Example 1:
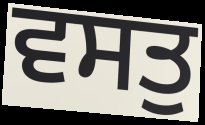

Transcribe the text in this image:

ਵਸਤੁ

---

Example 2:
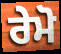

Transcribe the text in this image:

ਰੇਮੋ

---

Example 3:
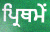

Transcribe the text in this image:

ਪ੍ਰਿਥਮੇਂ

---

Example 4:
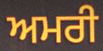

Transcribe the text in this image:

ਅਮਰੀ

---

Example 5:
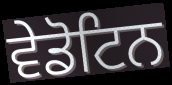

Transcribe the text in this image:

ਵੇਡੋਟਿਨ